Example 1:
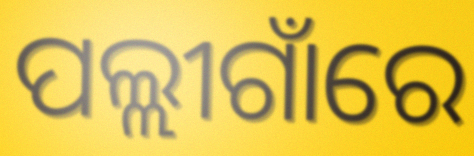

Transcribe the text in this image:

ପଲ୍ଲୀଗାଁରେ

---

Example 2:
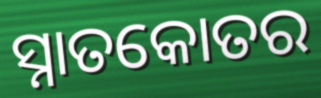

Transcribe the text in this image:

ସ୍ନାତକୋତର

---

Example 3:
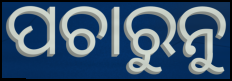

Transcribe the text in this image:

ପଚାରୁନୁ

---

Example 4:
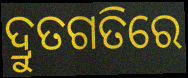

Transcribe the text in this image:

ଦ୍ରୁତଗତିରେ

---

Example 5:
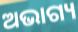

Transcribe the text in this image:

ଅଭାଗ୍ୟ